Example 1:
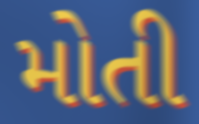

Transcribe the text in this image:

મોતી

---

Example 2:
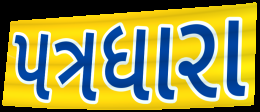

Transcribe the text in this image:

પત્રધારા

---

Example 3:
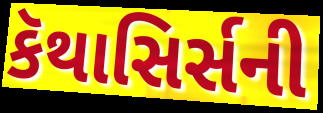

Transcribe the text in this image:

કૅથાસિર્સની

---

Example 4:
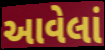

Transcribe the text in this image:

આવેલાં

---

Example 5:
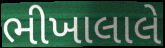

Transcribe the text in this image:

ભીખાલાલે